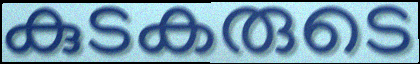
കുടകരുടെ